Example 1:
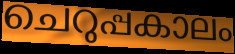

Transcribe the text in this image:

ചെറുപ്പകാലം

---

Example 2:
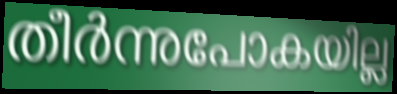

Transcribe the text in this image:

തീർന്നുപോകയില്ല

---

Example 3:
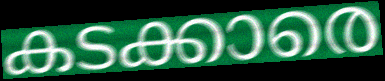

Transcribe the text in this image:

കടക്കാരെ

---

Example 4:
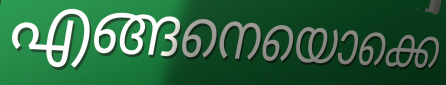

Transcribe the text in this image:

എങ്ങനെയൊക്കെ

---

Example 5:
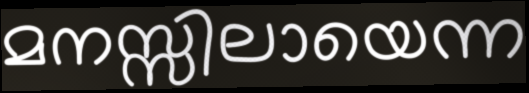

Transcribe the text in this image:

മനസ്സിലായെന്ന